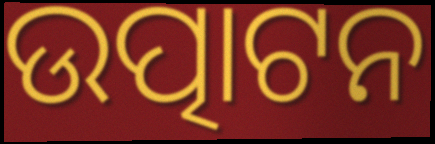
ଉତ୍ପାଟନ